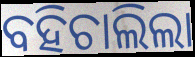
ବହିଚାଲିଲା